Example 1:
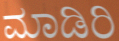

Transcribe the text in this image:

ಮಾಡಿರಿ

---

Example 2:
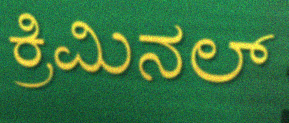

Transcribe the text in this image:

ಕ್ರಿಮಿನಲ್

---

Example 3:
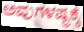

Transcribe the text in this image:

ಅವುಗಳಷ್ಟಕ್ಕೆ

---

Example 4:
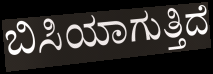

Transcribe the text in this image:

ಬಿಸಿಯಾಗುತ್ತಿದೆ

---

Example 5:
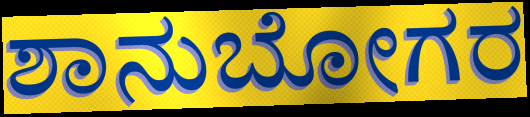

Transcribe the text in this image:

ಶಾನುಬೋಗರ